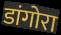
डांगोरा